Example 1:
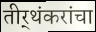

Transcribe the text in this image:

तीर्थंकरांचा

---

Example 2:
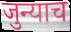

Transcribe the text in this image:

जुन्याच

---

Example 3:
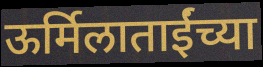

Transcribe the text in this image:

ऊर्मिलाताईंच्या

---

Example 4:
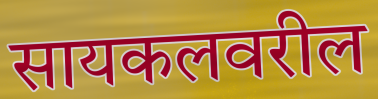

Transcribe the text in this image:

सायकलवरील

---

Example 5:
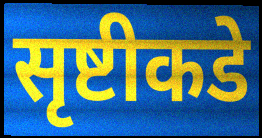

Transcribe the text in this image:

सृष्टीकडे